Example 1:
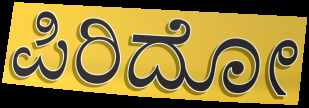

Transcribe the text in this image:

ಪಿರಿದೋ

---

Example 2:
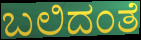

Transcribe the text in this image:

ಬಲಿದಂತೆ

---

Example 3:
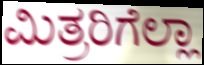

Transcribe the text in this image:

ಮಿತ್ರರಿಗೆಲ್ಲಾ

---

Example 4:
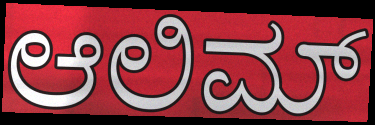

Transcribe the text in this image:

ಆಲಿಮ್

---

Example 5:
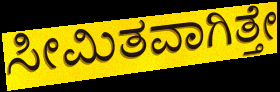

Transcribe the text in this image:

ಸೀಮಿತವಾಗಿತ್ತೇ